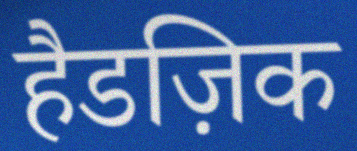
हैडज़िक